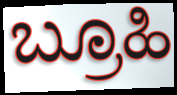
ಬ್ರೂಹಿ